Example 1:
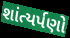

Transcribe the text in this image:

શાંત્યર્પણો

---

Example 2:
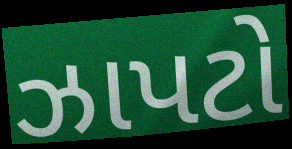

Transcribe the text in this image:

ઝાપટો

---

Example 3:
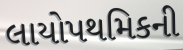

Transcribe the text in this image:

લાયોપથમિકની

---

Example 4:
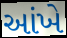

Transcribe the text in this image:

આંખે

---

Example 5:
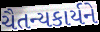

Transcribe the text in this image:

ચૈતન્યકાર્યને